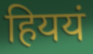
हिययं